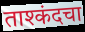
ताश्कंदचा